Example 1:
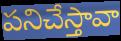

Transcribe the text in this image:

పనిచేస్తావా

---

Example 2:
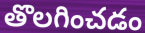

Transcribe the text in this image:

తొలగించడం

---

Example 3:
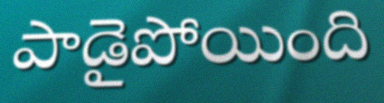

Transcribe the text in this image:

పాడైపోయింది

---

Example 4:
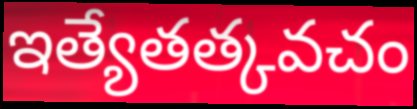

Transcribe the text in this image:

ఇత్యేతత్కవచం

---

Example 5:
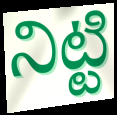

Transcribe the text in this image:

నిట్టి